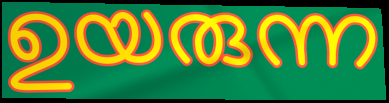
ഉയരുന്ന